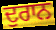
ਦੁਰਾਨ